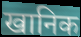
खानिक